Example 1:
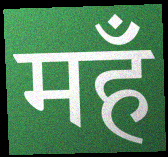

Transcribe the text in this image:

महँ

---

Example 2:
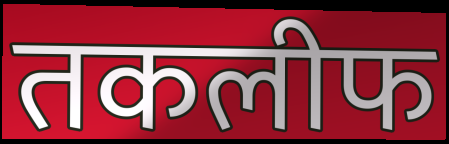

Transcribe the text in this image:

तकलीफ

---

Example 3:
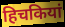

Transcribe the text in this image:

हिचकियां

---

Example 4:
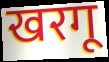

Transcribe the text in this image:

खरगू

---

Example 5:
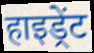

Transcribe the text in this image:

हाइड्रेंट